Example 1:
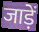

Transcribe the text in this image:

जाड़ें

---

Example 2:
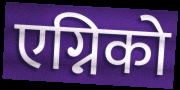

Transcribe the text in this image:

एग्निको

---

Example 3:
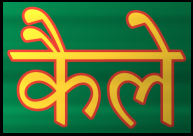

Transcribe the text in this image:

कैले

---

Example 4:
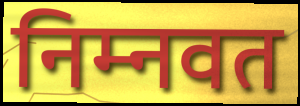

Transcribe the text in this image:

निम्नवत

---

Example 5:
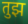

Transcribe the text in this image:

तुझ